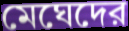
মেঘেদের